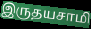
இருதயசாமி